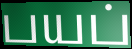
பயப்